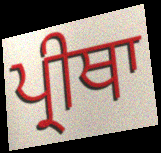
ਪ੍ਰੀਥਾ